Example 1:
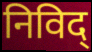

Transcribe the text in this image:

निविद्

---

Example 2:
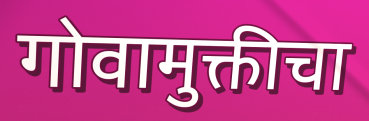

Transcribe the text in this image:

गोवामुक्तीचा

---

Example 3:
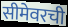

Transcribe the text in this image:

सीमेवरची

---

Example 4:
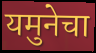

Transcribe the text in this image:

यमुनेचा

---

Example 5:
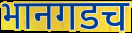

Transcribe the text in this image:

भानगडच